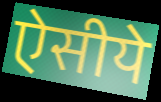
ऐसीये